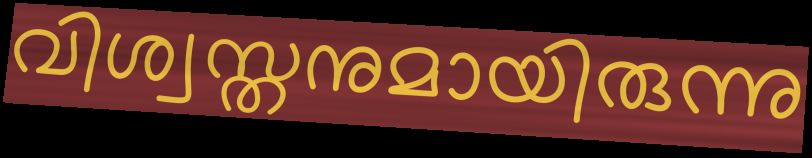
വിശ്വസ്തനുമായിരുന്നു